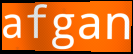
afgan